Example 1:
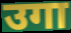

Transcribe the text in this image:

उगा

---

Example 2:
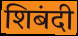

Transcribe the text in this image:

शिबंदी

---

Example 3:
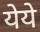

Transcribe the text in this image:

येये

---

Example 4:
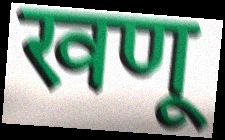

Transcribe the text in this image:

खणू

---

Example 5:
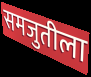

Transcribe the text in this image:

समजुतीला